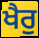
ਖੈਰੁ